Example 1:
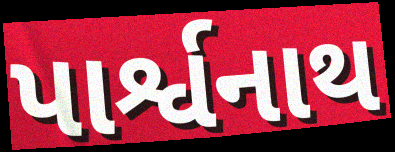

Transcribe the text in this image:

પાર્શ્વનાથ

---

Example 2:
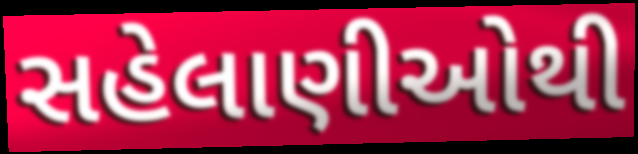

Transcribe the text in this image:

સહેલાણીઓથી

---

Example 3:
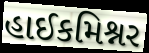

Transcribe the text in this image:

હાઈકમિશ્નર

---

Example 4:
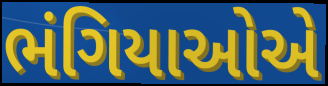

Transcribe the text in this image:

ભંગિયાઓએ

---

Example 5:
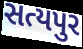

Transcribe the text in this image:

સત્યપુર